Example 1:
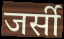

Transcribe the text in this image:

जर्सी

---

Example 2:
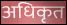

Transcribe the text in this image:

अधिकृत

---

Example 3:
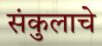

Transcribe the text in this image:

संकुलाचे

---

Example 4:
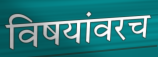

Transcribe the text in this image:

विषयांवरच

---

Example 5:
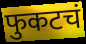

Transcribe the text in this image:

फुकटचं